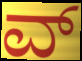
ವ್